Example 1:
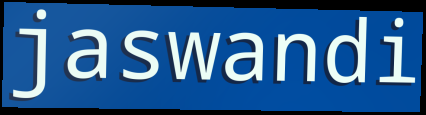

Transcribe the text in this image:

jaswandi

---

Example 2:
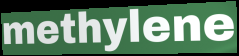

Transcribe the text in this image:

methylene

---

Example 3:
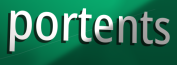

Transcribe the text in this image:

portents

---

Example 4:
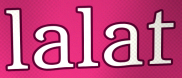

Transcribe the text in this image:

lalat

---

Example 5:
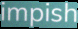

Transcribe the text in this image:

impish